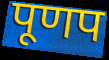
पूणप